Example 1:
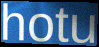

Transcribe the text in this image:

hotu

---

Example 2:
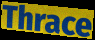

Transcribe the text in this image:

Thrace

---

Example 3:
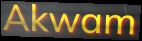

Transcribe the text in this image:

Akwam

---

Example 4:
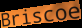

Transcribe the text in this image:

Briscoe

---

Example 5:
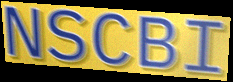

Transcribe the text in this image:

NSCBI